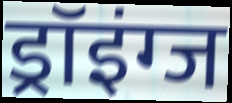
ड्रॉइंग्ज